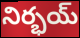
నిర్భయ్